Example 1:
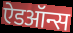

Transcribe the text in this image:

ऐडऑन्स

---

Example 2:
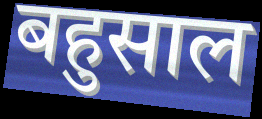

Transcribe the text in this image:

बहुसाल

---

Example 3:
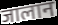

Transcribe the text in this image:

जालान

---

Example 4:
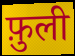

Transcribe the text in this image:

फ़ुली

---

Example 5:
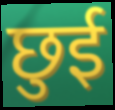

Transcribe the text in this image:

छुई